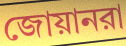
জোয়ানরা